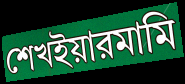
শেখইয়ারমামি